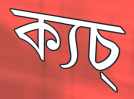
ক্যচ্